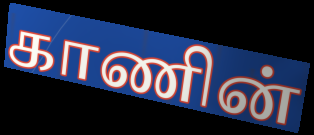
காணின்